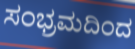
ಸಂಭ್ರಮದಿಂದ